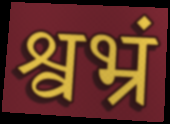
श्वभ्रं